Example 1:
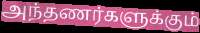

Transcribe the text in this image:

அந்தணர்களுக்கும்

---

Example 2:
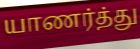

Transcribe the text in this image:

யாணர்த்து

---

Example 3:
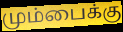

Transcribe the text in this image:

மும்பைக்கு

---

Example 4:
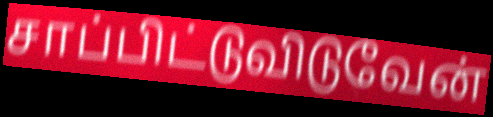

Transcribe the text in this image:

சாப்பிட்டுவிடுவேன்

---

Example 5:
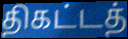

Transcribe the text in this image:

திகட்டத்